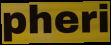
pheri